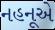
નહનૂએ